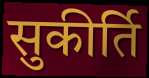
सुकीर्ति